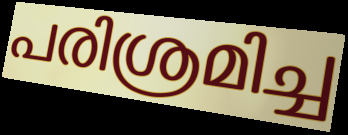
പരിശ്രമിച്ച